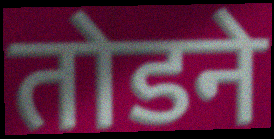
तोडने